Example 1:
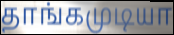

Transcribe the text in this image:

தாங்கமுடியா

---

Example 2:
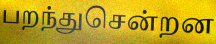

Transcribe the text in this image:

பறந்துசென்றன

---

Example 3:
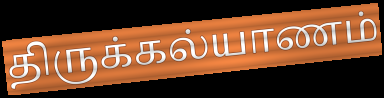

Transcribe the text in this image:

திருக்கல்யாணம்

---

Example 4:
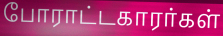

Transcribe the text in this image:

போராட்டகாரர்கள்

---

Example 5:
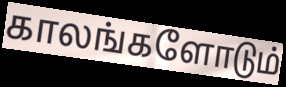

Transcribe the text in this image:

காலங்களோடும்